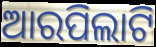
ଆରପିଲାଟି